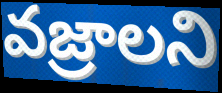
వజ్రాలని